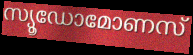
സ്യൂഡോമോണസ്